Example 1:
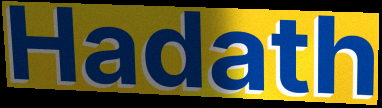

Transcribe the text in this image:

Hadath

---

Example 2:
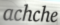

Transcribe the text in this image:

achche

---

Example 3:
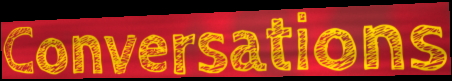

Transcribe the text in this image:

Conversations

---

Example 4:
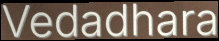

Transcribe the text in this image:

Vedadhara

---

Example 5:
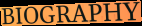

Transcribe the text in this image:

BIOGRAPHY